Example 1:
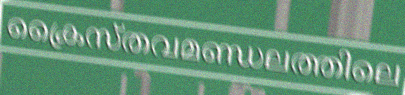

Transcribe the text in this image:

ക്രൈസ്തവമണ്ഡലത്തിലെ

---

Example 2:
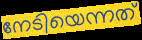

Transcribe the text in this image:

നേടിയെന്നത്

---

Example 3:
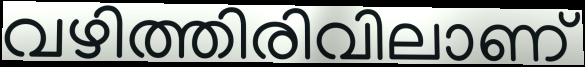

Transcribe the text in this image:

വഴിത്തിരിവിലാണ്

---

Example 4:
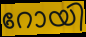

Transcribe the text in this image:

റോയി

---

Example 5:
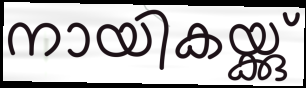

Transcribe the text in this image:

നായികയ്ക്കു്